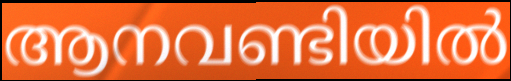
ആനവണ്ടിയിൽ